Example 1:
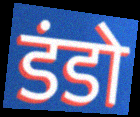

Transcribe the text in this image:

डंडो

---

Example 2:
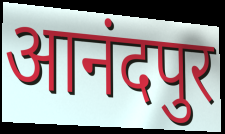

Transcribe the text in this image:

आनंदपुर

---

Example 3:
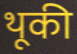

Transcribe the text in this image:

थूकी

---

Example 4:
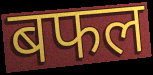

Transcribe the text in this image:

बफल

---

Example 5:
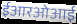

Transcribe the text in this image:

ईआरओआई